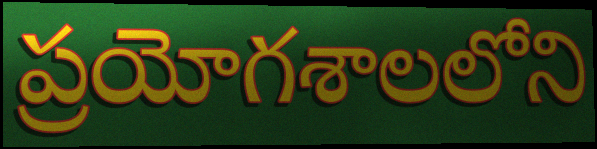
ప్రయోగశాలలోని